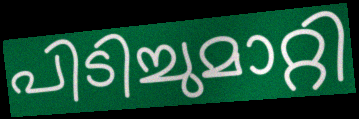
പിടിച്ചുമാറ്റി